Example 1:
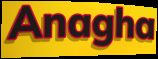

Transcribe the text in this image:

Anagha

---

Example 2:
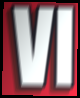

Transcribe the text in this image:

VI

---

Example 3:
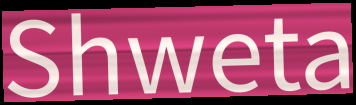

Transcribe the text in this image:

Shweta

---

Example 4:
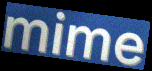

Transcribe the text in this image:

mime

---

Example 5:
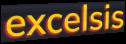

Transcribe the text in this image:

excelsis